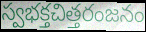
స్వభక్తచిత్తరంజనం